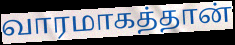
வாரமாகத்தான்